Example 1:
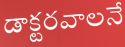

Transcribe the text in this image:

డాక్టరవాలనే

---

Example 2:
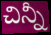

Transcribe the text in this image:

చిన్నీ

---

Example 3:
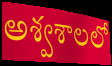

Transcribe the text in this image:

అశ్వశాలలో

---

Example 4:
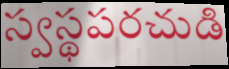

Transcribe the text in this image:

స్వస్థపరచుడి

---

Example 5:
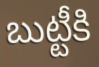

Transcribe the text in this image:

బుట్టీకి